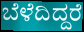
ಬೆಳೆದಿದ್ದರೆ